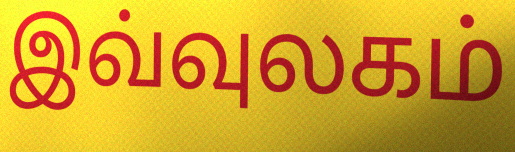
இவ்வுலகம்